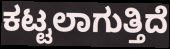
ಕಟ್ಟಲಾಗುತ್ತಿದೆ